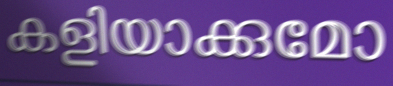
കളിയാക്കുമോ